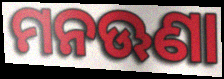
ମନଊଣା